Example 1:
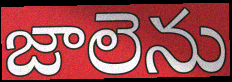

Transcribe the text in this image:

జాలెను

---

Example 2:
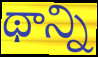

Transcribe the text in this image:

థాన్ని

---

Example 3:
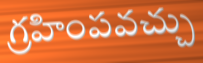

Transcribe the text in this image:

గ్రహింపవచ్చు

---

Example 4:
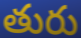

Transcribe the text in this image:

తురు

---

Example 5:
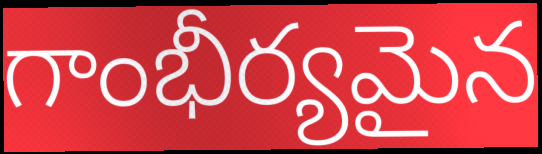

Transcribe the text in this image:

గాంభీర్యమైన